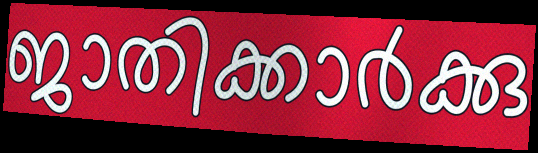
ജാതിക്കാർക്കു